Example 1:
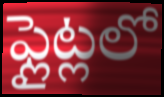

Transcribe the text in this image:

ఫ్లైట్లలో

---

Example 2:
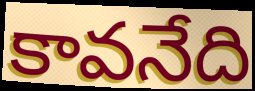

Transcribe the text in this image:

కావనేది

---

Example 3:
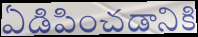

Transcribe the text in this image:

ఏడిపించడానికి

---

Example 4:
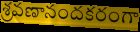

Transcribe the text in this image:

శ్రవణానందకరంగా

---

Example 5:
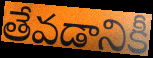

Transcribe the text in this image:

తేవడానికీ